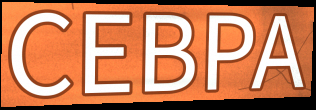
CEBPA